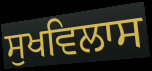
ਸੁਖਵਿਲਾਸ